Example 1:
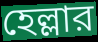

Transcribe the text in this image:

হেল্লার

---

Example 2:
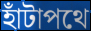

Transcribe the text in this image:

হাঁটাপথে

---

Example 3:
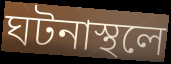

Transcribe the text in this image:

ঘটনাস্থলে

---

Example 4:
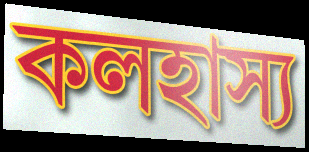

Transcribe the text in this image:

কলহাস্য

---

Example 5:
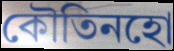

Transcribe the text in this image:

কৌতিনহো